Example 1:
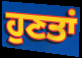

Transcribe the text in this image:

ਹੁਣਤਾਂ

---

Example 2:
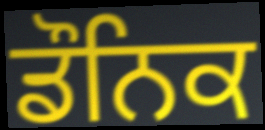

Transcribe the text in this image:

ਡੌਨਿਕ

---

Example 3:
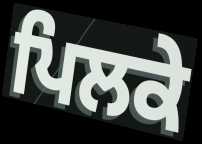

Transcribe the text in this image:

ਪਿਲਕੇ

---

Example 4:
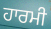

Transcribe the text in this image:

ਹਾਰਮੀ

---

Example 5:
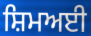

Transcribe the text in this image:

ਸ਼ਿਮਅਈ